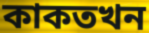
কাকতখন